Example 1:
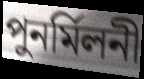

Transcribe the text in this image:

পুনর্মিলনী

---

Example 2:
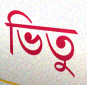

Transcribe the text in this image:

ভিতু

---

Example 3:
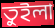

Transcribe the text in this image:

তুইলা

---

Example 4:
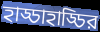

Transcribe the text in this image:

হাড্ডাহাড্ডির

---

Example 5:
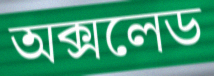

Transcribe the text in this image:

অক্সলেড